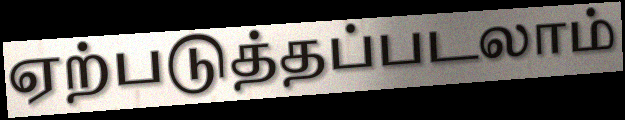
ஏற்படுத்தப்படலாம்